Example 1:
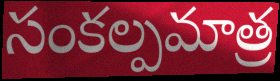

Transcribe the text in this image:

సంకల్పమాత్ర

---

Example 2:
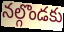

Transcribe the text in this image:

నల్గొండకు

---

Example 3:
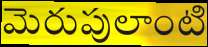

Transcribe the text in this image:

మెరుపులాంటి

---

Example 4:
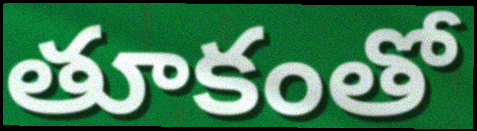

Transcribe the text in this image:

తూకంతో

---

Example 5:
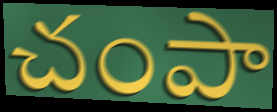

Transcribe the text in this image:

చంపా